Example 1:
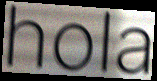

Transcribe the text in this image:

hola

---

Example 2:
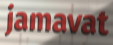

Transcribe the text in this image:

jamavat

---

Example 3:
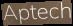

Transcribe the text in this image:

Aptech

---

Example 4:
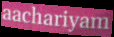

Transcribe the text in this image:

aachariyam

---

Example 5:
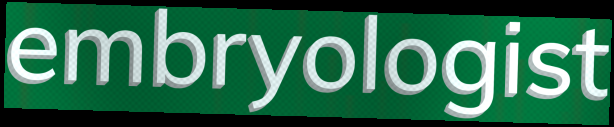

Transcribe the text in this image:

embryologist